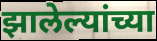
झालेल्यांच्या